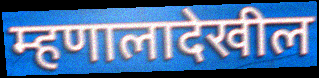
म्हणालादेखील